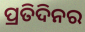
ପ୍ରତିଦିନର